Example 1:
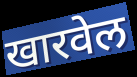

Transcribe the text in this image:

खारवेल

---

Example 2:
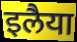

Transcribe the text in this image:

इलैया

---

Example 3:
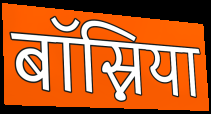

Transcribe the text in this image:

बॉस्निया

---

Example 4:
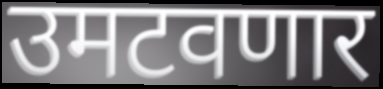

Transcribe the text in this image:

उमटवणार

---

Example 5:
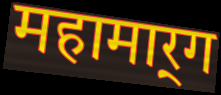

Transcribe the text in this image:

महामार्ग